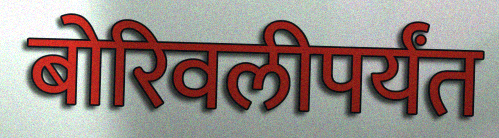
बोरिवलीपर्यंत